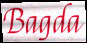
Bagda